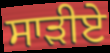
ਸਾੜੀਏ